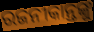
ରଜନୀକାନ୍ତଙ୍କୁ